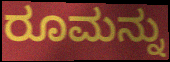
ರೂಮನ್ನು